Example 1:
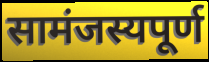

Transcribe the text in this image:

सामंजस्यपूर्ण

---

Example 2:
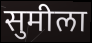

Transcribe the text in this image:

सुमीला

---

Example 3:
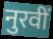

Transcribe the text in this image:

नुरवीं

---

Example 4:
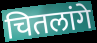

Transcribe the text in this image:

चितलांगे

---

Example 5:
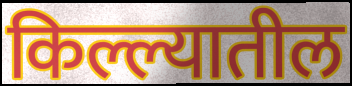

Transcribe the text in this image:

किल्ल्यातील